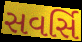
સવર્સિ